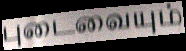
புடைவையும்